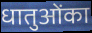
धातुओंका